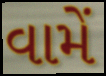
વામેં